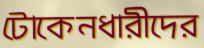
টোকেনধারীদের